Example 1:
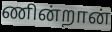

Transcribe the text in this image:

ணின்றான்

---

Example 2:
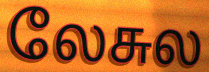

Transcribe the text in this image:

லேசுல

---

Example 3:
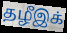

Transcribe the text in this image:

தழீஇக்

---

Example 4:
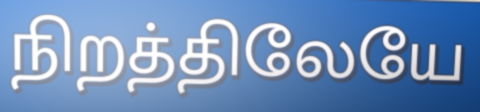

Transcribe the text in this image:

நிறத்திலேயே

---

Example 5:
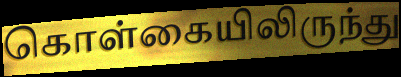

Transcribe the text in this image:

கொள்கையிலிருந்து